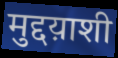
मुद्दय़ाशी